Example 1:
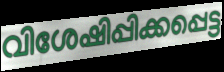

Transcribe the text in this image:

വിശേഷിപ്പിക്കപ്പെട്ട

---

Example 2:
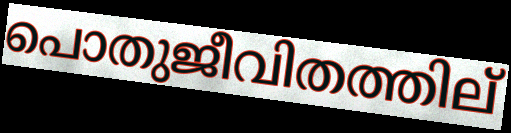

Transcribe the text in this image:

പൊതുജീവിതത്തില്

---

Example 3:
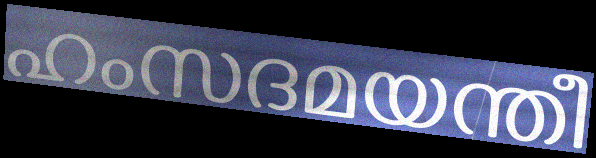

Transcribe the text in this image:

ഹംസദമയന്തീ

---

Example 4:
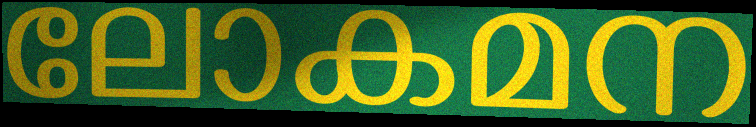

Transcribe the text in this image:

ലോകമന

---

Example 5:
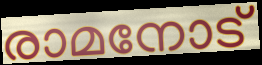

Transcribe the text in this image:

രാമനോട്